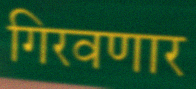
गिरवणार